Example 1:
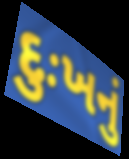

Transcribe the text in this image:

દુઃખનું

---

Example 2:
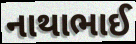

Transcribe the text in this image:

નાથાભાઈ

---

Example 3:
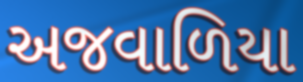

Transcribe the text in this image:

અજવાળિયા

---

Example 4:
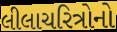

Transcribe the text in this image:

લીલાચરિત્રોનો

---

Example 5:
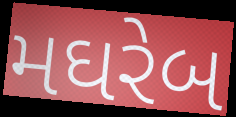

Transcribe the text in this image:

મઘરેબ